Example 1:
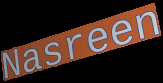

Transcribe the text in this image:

Nasreen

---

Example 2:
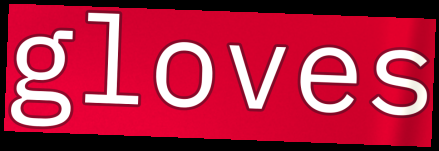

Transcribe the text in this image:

gloves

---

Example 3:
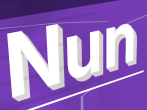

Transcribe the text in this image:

Nun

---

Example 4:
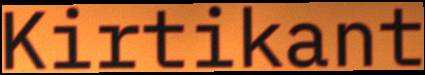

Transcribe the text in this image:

Kirtikant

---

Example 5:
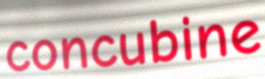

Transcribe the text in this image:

concubine